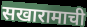
सखारामाची